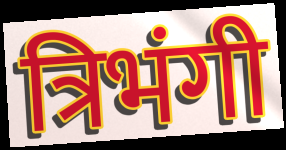
त्रिभंगी